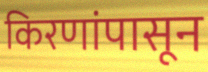
किरणांपासून